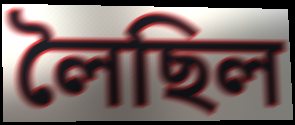
লৈছিল